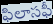
ఫిలాసఫీ